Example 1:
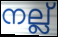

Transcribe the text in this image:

നല്ല്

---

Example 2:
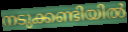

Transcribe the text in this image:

നടുക്കണ്ടിയിൽ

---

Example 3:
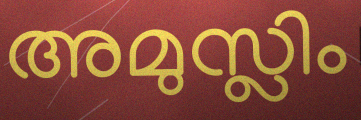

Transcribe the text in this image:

അമുസ്ലിം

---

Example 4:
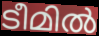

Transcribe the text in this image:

ടീമിൽ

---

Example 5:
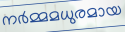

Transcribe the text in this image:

നർമ്മമധുരമായ